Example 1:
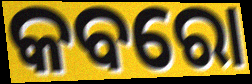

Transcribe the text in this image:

କବରୋ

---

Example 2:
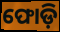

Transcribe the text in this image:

ଫୋଡ଼ି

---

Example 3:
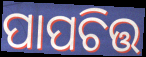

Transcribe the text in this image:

ପାପଚିତ୍ତ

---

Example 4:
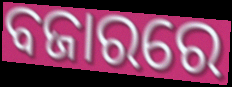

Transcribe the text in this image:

ବଜାରରେ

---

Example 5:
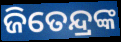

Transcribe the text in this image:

ଜିତେନ୍ଦ୍ରଙ୍କ